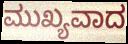
ಮುಖ್ಯವಾದ